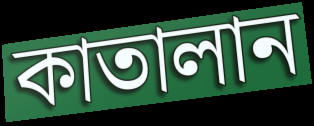
কাতালান